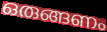
ഒരുങ്ങണം